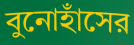
বুনোহাঁসের